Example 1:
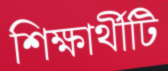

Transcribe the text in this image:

শিক্ষার্থীটি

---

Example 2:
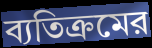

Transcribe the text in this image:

ব্যতিক্রমের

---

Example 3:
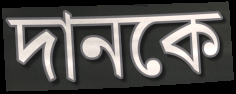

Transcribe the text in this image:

দানকে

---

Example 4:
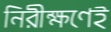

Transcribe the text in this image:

নিরীক্ষণেই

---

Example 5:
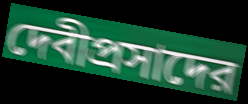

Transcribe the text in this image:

দেবীপ্রসাদের